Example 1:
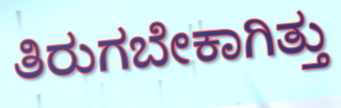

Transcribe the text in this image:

ತಿರುಗಬೇಕಾಗಿತ್ತು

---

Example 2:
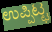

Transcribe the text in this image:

ಉಪ್ಪಿಟ್ಟ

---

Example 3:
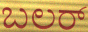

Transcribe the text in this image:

ಬಲರ್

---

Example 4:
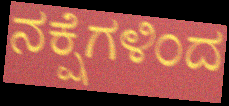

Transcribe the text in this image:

ನಕ್ಷೆಗಳಿಂದ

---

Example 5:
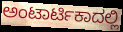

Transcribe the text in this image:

ಅಂಟಾರ್ಟಿಕಾದಲ್ಲಿ